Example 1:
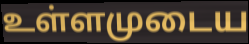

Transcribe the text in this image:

உள்ளமுடைய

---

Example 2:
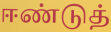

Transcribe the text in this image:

ஈண்டுத்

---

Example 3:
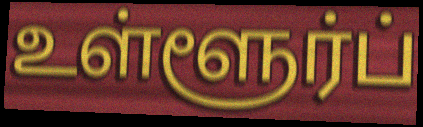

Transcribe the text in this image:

உள்ளூர்ப்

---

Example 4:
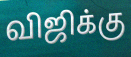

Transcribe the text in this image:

விஜிக்கு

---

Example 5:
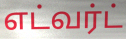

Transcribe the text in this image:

எட்வர்ட்